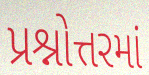
પ્રશ્નોત્તરમાં